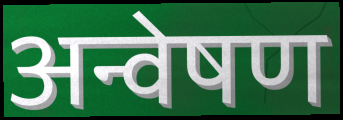
अन्वेषण